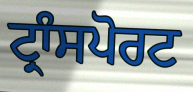
ਟ੍ਰਾੰਸਪੋਰਟ